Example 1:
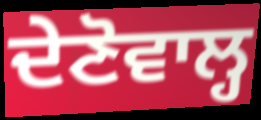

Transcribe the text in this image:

ਦੇਣੋਵਾਲ੍ਹ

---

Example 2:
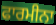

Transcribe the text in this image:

ਫਾਰਮੀਨਾ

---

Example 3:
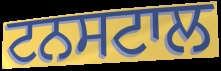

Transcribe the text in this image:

ਟਨਸਟਾਲ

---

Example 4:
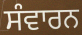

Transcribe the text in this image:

ਸੰਵਾਰਨ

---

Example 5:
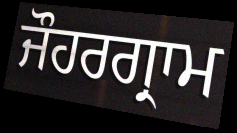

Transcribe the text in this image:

ਜੌਹਰਗ੍ਰਾਮ